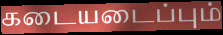
கடையடைப்பும்